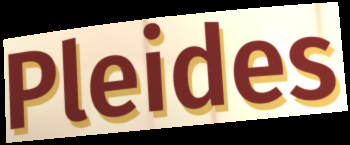
Pleides